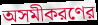
অসমীকরণের